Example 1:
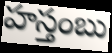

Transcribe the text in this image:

హస్తంబు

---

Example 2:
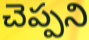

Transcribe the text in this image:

చెప్పని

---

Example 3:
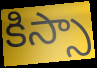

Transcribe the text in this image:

కిస్సా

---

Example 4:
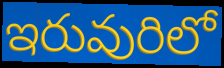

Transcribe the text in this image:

ఇరువురిలో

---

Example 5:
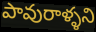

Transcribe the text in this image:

పావురాళ్ళని